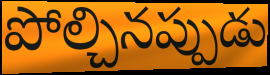
పోల్చినప్పుడు